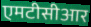
एमटीसीआर